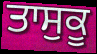
ਤਾਸੁਕੂ